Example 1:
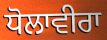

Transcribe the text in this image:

ਧੋਲਾਵੀਰਾ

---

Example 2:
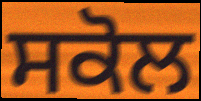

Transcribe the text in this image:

ਸਕੋਲ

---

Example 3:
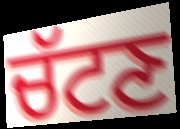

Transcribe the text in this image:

ਚੱਟਣ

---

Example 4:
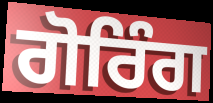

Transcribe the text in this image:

ਗੋਰਿੰਗ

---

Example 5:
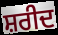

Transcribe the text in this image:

ਸ਼ਰੀਦ